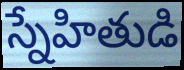
స్నేహితుడి